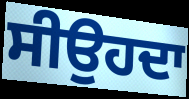
ਸੀਉਹਦਾ